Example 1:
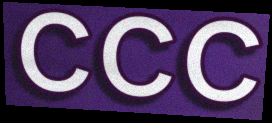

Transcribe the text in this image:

ccc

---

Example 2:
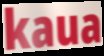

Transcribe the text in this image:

kaua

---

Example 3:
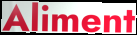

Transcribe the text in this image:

Aliment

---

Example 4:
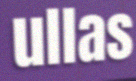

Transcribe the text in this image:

ullas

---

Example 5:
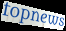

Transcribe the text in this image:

topnews